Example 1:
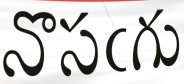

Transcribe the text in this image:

నొసఁగు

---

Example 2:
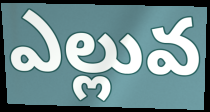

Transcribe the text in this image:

ఎల్లువ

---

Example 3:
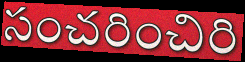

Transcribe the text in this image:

సంచరించిరి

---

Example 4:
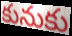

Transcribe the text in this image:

కునుకు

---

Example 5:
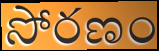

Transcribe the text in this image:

సోరణం